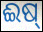
ଈଷ୍